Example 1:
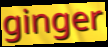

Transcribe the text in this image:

ginger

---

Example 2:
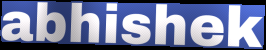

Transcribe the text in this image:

abhishek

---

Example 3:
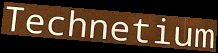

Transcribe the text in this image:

Technetium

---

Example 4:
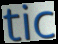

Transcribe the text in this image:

tic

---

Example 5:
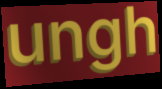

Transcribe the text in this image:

ungh